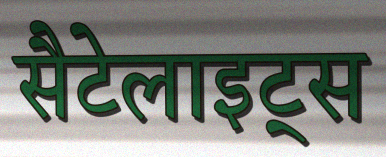
सैटेलाइट्स